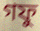
গফু